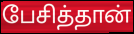
பேசித்தான்